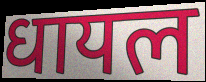
धायल